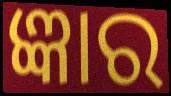
ଜ୍ଞାର